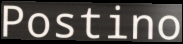
Postino